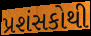
પ્રશંસકોથી